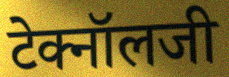
टेक्नॉलजी